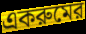
একরুমের